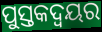
ପୁସ୍ତକଦ୍ୱୟର